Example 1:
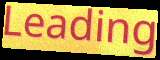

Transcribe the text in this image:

Leading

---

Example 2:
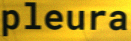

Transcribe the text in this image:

pleura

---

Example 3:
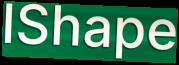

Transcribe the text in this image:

IShape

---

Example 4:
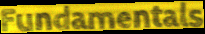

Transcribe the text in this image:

Fundamentals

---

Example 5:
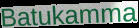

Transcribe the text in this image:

Batukamma